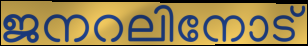
ജനറലിനോട്